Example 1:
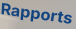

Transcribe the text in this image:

Rapports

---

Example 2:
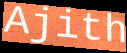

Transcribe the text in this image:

Ajith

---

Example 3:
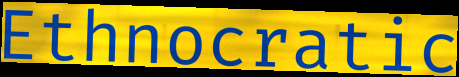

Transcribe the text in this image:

Ethnocratic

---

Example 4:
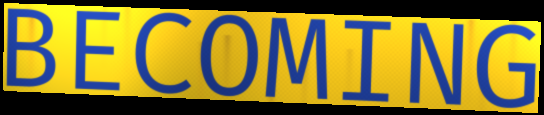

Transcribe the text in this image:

BECOMING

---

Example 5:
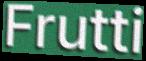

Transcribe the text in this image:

Frutti